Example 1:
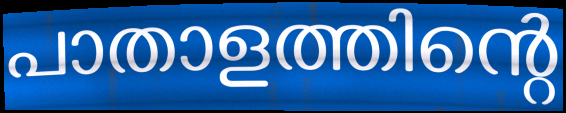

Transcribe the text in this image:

പാതാളത്തിന്റെ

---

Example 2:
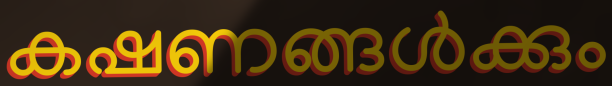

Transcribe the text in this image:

കഷണങ്ങൾക്കും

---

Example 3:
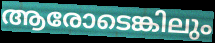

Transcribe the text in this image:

ആരോടെങ്കിലും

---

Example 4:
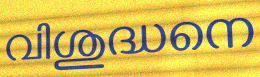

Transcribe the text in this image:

വിശുദ്ധനെ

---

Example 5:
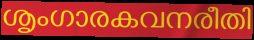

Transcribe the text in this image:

ശൃംഗാരകവനരീതി